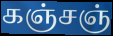
கஞ்சஞ்